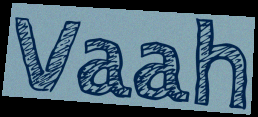
Vaah